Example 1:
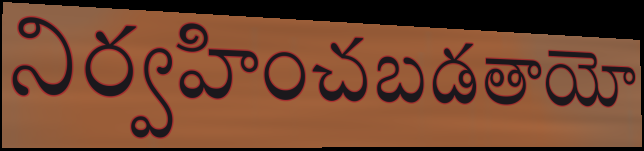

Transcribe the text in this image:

నిర్వహించబడతాయో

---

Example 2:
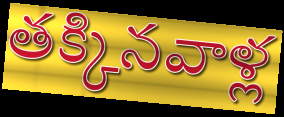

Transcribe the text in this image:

తక్కినవాళ్ల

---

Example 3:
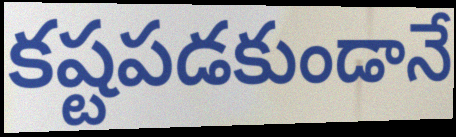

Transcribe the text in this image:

కష్టపడకుండానే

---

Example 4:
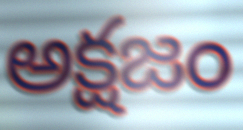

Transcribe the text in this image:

అక్షజం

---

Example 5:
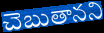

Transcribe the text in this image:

చెబుతానని